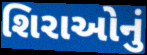
શિરાઓનું